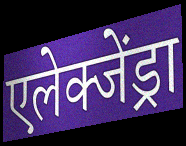
एलेक्जेंड्रा